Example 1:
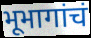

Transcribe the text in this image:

भूभागांचं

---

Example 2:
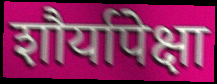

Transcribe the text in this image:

शौर्यापेक्षा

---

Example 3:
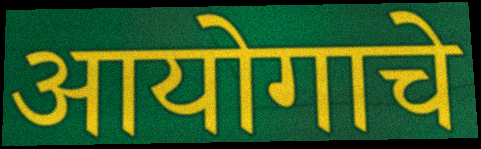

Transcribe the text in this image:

आयोगाचे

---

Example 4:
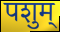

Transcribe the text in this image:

पशुम्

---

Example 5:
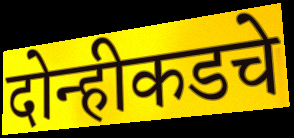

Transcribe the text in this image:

दोन्हीकडचे